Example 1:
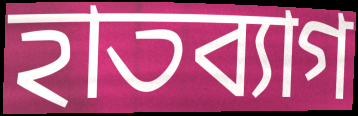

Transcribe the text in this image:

হাতব্যাগ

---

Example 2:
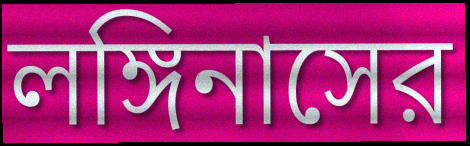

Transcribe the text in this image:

লঙ্গিনাসের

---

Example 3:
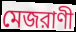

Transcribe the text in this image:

মেজরাণী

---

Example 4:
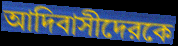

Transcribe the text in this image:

আদিবাসীদেরকে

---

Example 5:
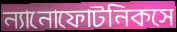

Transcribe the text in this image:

ন্যানোফোটনিকসে